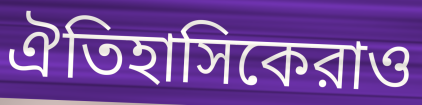
ঐতিহাসিকেরাও